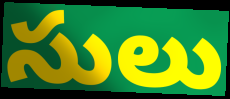
సులు